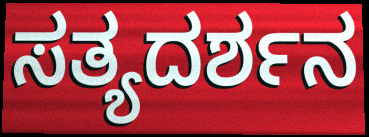
ಸತ್ಯದರ್ಶನ